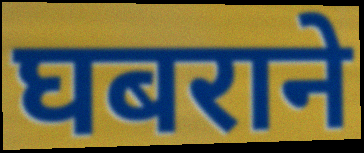
घबराने